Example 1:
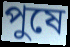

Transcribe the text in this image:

পুষে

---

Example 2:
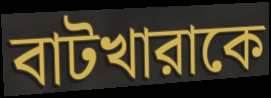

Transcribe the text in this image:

বাটখারাকে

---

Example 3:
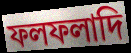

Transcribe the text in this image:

ফলফলাদি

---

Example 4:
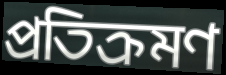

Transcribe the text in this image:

প্রতিক্রমণ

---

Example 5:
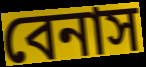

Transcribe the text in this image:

বেনাস